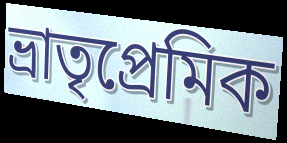
ভ্রাতৃপ্রেমিক